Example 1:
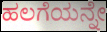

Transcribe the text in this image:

ಹಲಗೆಯನ್ನೇ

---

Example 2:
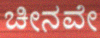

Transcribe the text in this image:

ಚೀನವೇ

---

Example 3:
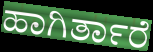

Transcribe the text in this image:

ಹಾಗಿರ್ತಾರೆ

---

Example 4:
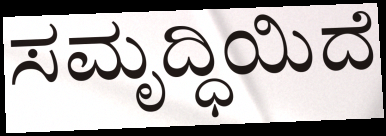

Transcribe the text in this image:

ಸಮೃದ್ಧಿಯಿದೆ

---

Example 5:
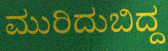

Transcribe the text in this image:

ಮುರಿದುಬಿದ್ದ